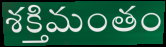
శక్తిమంతం